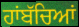
ਹਾਂਬੱਚਿਆਂ